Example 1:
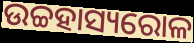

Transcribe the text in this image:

ଉଚ୍ଚହାସ୍ୟରୋଳ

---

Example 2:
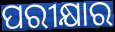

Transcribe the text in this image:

ପରୀକ୍ଷାର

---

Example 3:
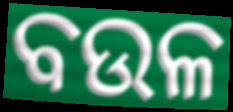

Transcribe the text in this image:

ବଉଳ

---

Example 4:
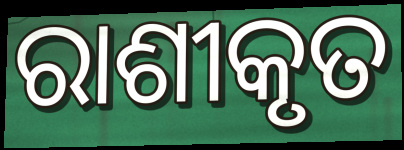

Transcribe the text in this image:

ରାଶୀକୃତ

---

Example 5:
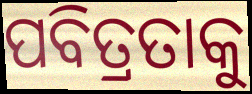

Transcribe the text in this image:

ପବିତ୍ରତାକୁ